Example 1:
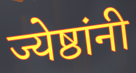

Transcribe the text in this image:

ज्येष्ठांनी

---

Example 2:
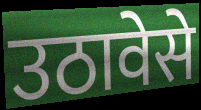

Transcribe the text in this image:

उठावेसे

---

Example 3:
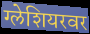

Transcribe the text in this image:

ग्लेशियरवर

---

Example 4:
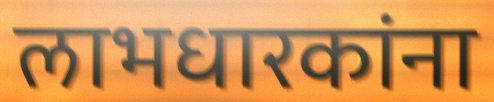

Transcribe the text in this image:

लाभधारकांना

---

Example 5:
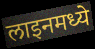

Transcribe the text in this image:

लाइनमध्ये